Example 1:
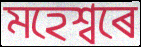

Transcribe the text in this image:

মহেশ্বৰে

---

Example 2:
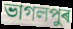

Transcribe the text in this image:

ভাগলপুৰ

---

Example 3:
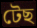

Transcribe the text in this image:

টেছ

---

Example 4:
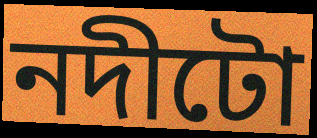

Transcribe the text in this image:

নদীটো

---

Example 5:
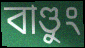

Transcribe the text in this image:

বাণ্ডুং